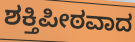
ಶಕ್ತಿಪೀಠವಾದ